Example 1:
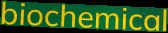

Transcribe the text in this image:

biochemical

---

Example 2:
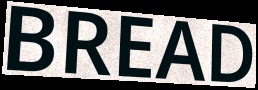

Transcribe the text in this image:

BREAD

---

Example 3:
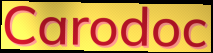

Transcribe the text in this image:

Carodoc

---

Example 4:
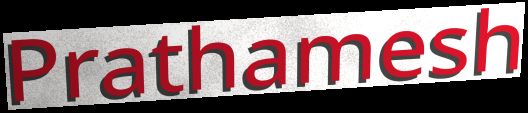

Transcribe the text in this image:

Prathamesh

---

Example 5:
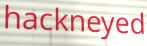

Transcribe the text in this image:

hackneyed